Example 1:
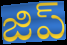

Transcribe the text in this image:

జిప్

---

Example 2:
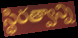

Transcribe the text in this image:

స్థిరత్వాన్ని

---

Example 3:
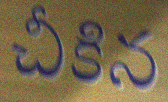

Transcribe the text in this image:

చీకిన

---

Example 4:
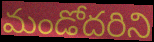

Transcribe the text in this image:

మండోదరిని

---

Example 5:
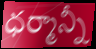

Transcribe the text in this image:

ధర్మాన్నీ